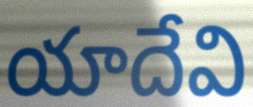
యాదేవి